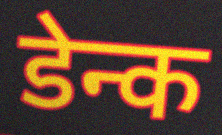
डेन्क